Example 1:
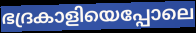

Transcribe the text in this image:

ഭദ്രകാളിയെപ്പോലെ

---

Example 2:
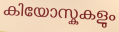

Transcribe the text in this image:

കിയോസ്കുകളും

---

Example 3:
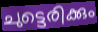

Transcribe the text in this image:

ചുട്ടെരിക്കും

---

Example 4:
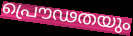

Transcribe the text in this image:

പ്രൌഢതയും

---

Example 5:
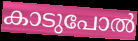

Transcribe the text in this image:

കാടുപോൽ